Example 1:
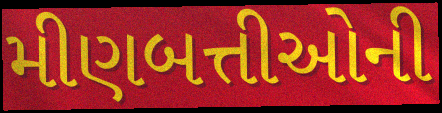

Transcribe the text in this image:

મીણબત્તીઓની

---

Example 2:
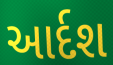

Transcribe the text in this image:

આર્દશ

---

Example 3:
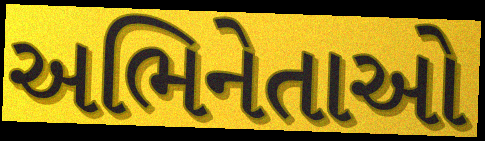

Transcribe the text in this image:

અભિનેતાઓ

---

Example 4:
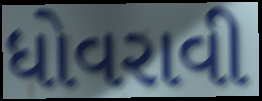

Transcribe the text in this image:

ધોવરાવી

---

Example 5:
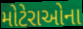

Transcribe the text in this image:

મોટેરાઓના